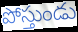
పోస్తుండు